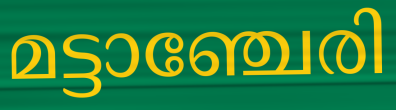
മട്ടാഞ്ചേരി